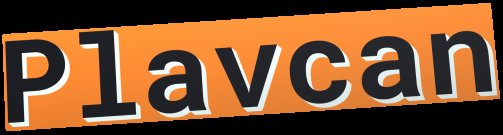
Plavcan